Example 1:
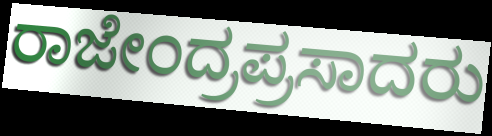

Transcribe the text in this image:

ರಾಜೇಂದ್ರಪ್ರಸಾದರು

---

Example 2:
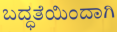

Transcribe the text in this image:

ಬದ್ಧತೆಯಿಂದಾಗಿ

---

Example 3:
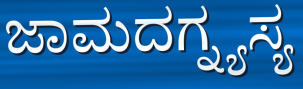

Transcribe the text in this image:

ಜಾಮದಗ್ನ್ಯಸ್ಯ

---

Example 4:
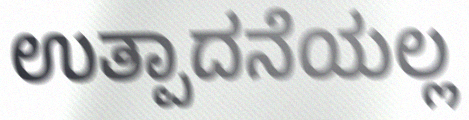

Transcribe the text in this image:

ಉತ್ಪಾದನೆಯಲ್ಲ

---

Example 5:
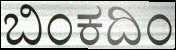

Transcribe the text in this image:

ಬಿಂಕದಿಂ